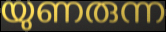
യുണരുന്ന